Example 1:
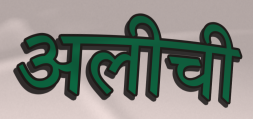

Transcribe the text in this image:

अलीची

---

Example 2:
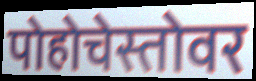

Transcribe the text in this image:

पोहोचेस्तोवर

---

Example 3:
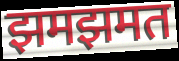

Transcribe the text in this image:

झमझमत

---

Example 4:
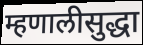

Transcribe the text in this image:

म्हणालीसुद्धा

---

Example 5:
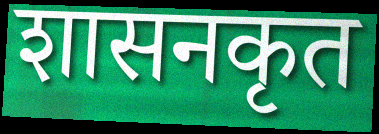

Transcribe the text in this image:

शासनकृत